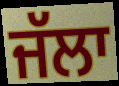
ਜੱਲਾ